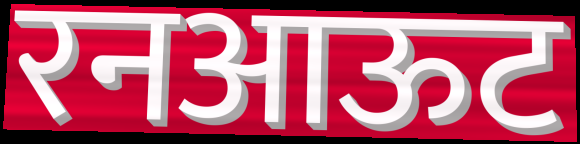
रनआऊट